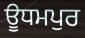
ਊਧਮਪੁਰ